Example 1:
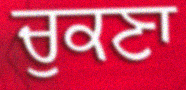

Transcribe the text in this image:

ਚੁਕਣਾ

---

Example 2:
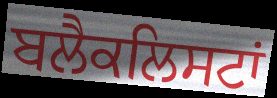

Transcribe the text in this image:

ਬਲੈਕਲਿਸਟਾਂ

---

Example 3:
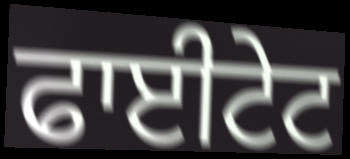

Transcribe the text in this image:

ਫਾਈਟੇਟ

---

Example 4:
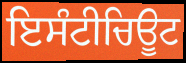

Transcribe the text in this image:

ਇਸੰਟੀਚਿਊਟ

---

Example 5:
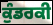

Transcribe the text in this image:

ਕੁੰਡਰਕੀ